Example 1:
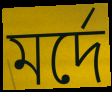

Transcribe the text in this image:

মর্দে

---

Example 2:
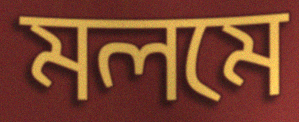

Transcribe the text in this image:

মলমে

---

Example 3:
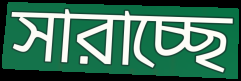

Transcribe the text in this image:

সারাচ্ছে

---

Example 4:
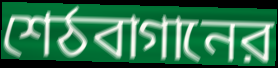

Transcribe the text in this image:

শেঠবাগানের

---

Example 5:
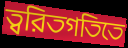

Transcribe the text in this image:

ত্বরিতগতিতে